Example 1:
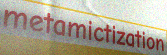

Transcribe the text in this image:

metamictization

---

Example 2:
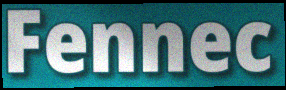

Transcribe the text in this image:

Fennec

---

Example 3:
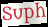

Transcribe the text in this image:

Suph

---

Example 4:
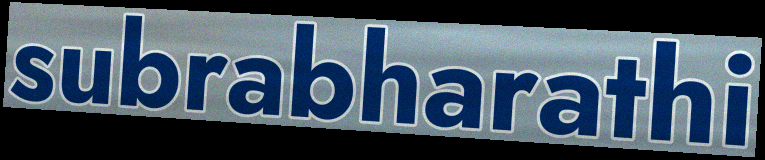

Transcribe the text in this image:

subrabharathi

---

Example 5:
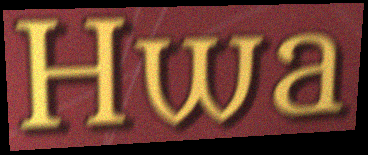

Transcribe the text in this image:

Hwa